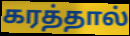
கரத்தால்